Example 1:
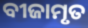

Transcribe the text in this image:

ବୀଜାମୃତ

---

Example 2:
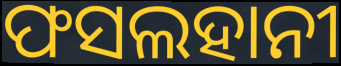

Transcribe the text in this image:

ଫସଲହାନୀ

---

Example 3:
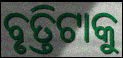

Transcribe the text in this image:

ବୃତ୍ତିଟାକୁ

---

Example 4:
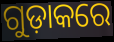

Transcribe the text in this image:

ଗୁଡ଼ାକରେ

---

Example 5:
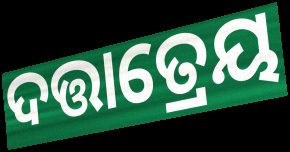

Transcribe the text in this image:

ଦତ୍ତାତ୍ରେୟ